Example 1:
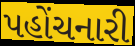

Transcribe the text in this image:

પહોંચનારી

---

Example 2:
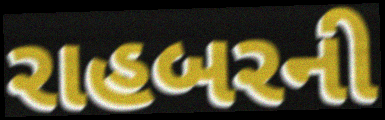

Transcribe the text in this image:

રાહબરની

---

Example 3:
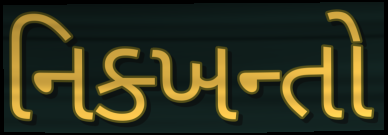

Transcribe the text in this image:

નિક્ખન્તો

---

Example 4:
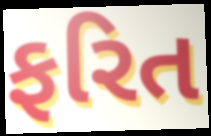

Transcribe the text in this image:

ફરિત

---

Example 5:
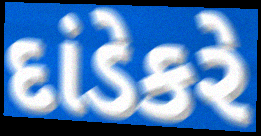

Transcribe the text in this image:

દાંડેકરે